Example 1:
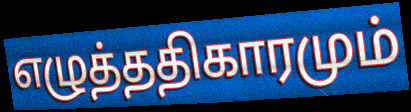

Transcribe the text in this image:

எழுத்ததிகாரமும்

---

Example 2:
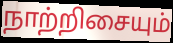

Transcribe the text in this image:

நாற்றிசையும்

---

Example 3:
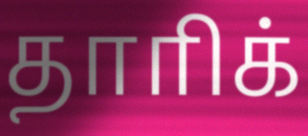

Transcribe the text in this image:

தாரிக்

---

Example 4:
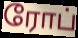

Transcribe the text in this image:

ரோப்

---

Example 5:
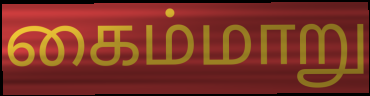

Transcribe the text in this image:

கைம்மாறு